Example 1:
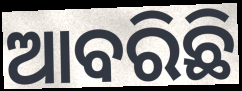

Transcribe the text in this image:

ଆବରିଛି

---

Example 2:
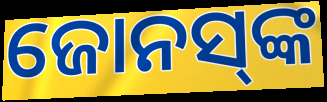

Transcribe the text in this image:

ଜୋନସ୍‌ଙ୍କ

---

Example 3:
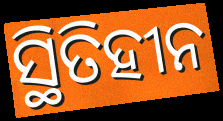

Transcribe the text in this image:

ସ୍ଥିତିହୀନ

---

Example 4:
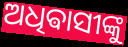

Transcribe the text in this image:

ଅଧିଵାସୀଙ୍କୁ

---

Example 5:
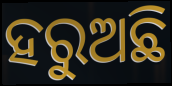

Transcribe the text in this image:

ହରୁଅଛି